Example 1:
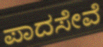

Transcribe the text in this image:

ಪಾದಸೇವೆ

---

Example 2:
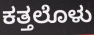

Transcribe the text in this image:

ಕತ್ತಲೊಳು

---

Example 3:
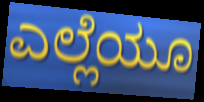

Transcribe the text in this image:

ಎಲ್ಲೆಯೂ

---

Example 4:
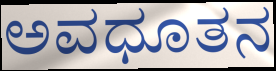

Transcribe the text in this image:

ಅವಧೂತನ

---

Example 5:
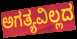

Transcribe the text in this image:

ಅಗತ್ಯವಿಲ್ಲದ